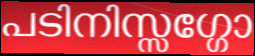
പടിനിസ്സഗ്ഗോ